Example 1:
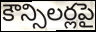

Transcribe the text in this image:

కౌన్సిలర్లపై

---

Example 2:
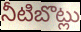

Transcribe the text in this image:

నీటిబొట్లు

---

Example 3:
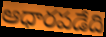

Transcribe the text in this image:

ఆధారపడేది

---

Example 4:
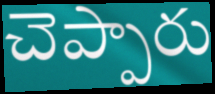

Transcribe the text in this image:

చెప్పారు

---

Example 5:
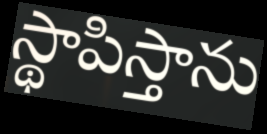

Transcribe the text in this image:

స్థాపిస్తాను